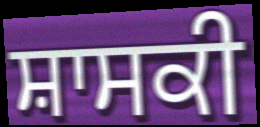
ਸ਼ਾਸਕੀ